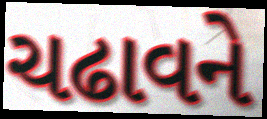
ચઢાવને